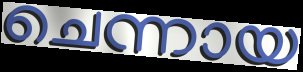
ചെന്നായ